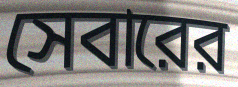
সেবারের